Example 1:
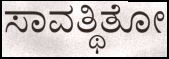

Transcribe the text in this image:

ಸಾವತ್ಥಿತೋ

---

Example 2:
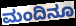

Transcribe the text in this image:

ಮಂದಿನೂ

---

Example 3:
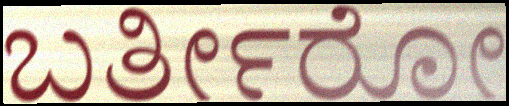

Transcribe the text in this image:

ಬರ್ತೀರೋ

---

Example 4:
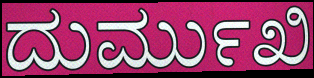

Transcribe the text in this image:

ದುರ್ಮುಖಿ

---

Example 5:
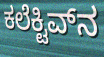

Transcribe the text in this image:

ಕಲೆಕ್ಟಿವ್‌ನ